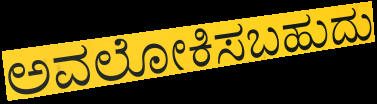
ಅವಲೋಕಿಸಬಹುದು